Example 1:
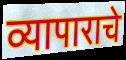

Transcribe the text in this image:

व्यापाराचे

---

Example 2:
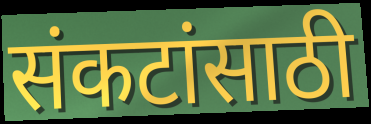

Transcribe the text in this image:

संकटांसाठी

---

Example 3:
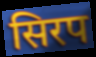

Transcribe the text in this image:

सिरप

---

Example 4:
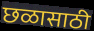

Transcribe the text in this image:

छळासाठी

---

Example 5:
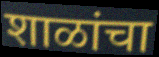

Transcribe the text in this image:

शाळांचा